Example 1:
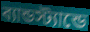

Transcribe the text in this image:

ব্যান্ডস্ট্যান্ডে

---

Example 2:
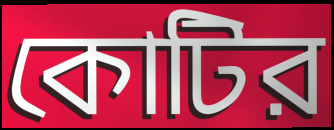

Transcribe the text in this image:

কোটির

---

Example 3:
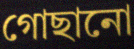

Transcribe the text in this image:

গোছানো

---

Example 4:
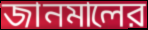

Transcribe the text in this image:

জানমালের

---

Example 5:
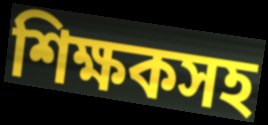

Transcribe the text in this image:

শিক্ষকসহ